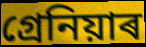
গ্ৰেনিয়াৰ